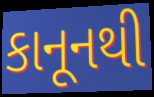
કાનૂનથી